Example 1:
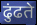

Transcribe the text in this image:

ढुंढते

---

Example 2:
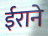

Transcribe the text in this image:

ईराने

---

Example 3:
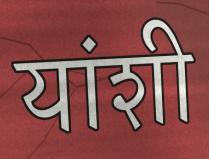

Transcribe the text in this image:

यांशी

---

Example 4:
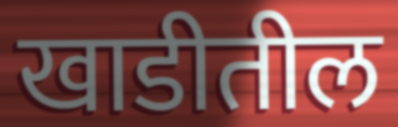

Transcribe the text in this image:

खाडीतील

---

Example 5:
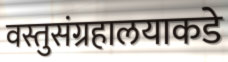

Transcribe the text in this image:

वस्तुसंग्रहालयाकडे